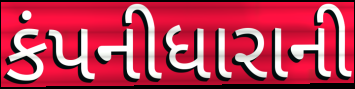
કંપનીધારાની